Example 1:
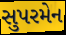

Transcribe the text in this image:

સુપરમેન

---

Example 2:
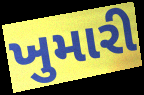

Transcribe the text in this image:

ખુમારી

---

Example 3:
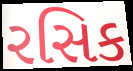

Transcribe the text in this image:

રસિક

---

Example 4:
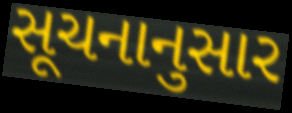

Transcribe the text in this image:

સૂચનાનુસાર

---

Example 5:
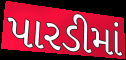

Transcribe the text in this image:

પારડીમાં